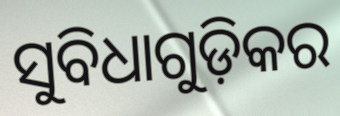
ସୁବିଧାଗୁଡ଼ିକର